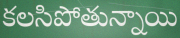
కలసిపోతున్నాయి